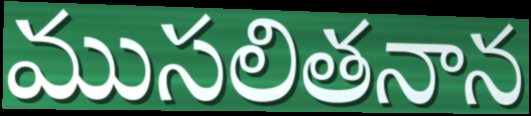
ముసలితనాన